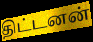
திட்டனன்